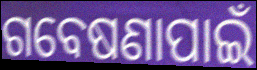
ଗବେଷଣାପାଇଁ